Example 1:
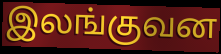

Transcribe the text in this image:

இலங்குவன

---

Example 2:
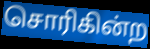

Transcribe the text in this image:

சொரிகின்ற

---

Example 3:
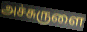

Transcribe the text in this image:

அச்சுருளை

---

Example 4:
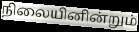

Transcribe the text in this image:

நிலையினின்றும்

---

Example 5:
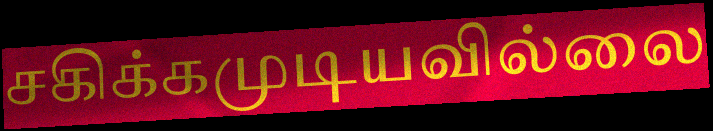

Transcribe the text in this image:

சகிக்கமுடியவில்லை